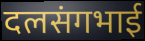
दलसंगभाई